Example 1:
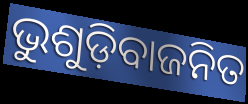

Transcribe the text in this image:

ଭୁଶୁଡ଼ିବାଜନିତ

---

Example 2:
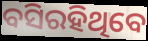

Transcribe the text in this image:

ବସିରହିଥିବେ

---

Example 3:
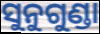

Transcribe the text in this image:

ସୁନୁଗୁଣ୍ଡା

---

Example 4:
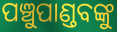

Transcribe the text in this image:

ପଞ୍ଚୁପାଣ୍ଡବଙ୍କୁ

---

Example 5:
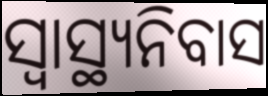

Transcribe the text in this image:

ସ୍ୱାସ୍ଥ୍ୟନିବାସ